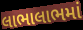
લાભાલાભમાં